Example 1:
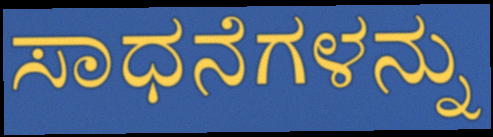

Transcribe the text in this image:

ಸಾಧನೆಗಳನ್ನು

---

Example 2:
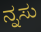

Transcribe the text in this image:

ನ್ನಸು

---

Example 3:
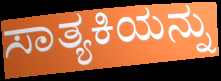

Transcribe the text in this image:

ಸಾತ್ಯಕಿಯನ್ನು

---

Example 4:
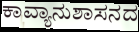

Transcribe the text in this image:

ಕಾವ್ಯಾನುಶಾಸನದ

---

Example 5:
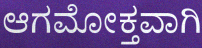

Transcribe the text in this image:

ಆಗಮೋಕ್ತವಾಗಿ